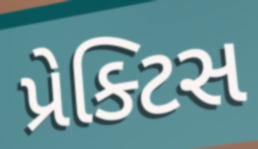
પ્રેક્ટિસ